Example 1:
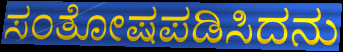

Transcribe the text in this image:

ಸಂತೋಷಪಡಿಸಿದನು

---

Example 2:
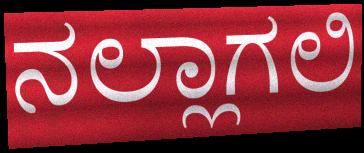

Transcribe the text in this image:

ನಲ್ಲಾಗಲಿ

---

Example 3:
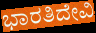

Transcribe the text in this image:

ಭಾರತಿದೇವಿ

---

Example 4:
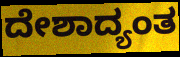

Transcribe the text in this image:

ದೇಶಾದ್ಯಂತ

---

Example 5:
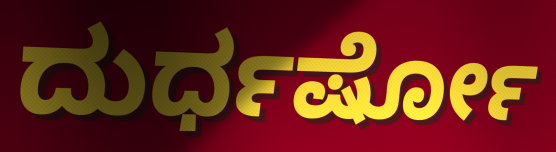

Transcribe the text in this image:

ದುರ್ಧರ್ಷೋ